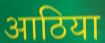
आठिया